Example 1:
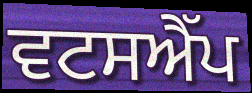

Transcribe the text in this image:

ਵਟਸਐੱਪ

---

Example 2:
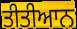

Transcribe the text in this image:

ਤੀਤੀਆਨ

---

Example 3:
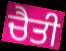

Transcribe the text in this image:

ਚੈਤੀ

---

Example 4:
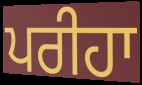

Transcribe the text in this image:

ਪਰੀਹਾ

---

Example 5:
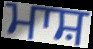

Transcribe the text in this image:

ਮਾਸ਼